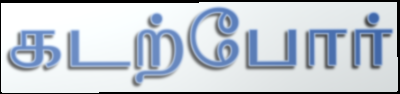
கடற்போர்